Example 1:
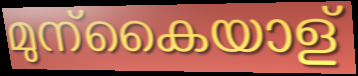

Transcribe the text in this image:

മുന്കൈയാള്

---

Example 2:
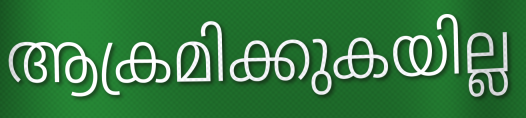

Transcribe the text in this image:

ആക്രമിക്കുകയില്ല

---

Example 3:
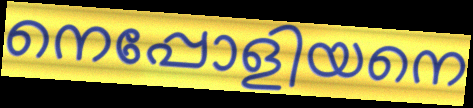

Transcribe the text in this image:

നെപ്പോളിയനെ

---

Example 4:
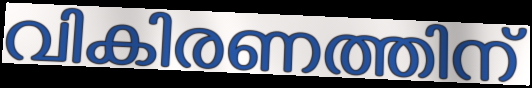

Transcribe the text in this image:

വികിരണത്തിന്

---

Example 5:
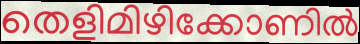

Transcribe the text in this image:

തെളിമിഴിക്കോണിൽ